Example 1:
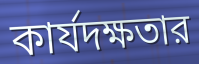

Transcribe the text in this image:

কার্যদক্ষতার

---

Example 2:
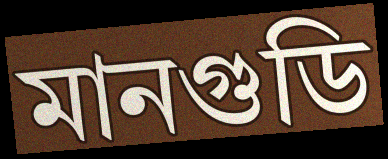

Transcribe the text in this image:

মানগুডি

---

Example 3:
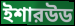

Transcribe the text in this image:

ইশারউড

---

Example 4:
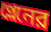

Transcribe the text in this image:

প্লেনের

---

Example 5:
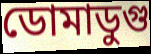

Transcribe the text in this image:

ডোমাডুগু